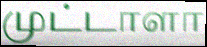
முட்டாளா